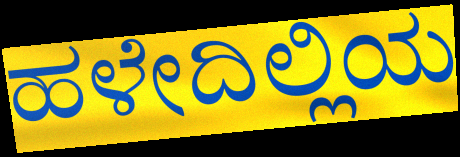
ಹಳೇದಿಲ್ಲಿಯ